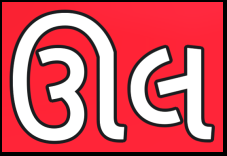
ઊલ